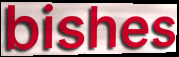
bishes